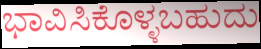
ಭಾವಿಸಿಕೊಳ್ಳಬಹುದು